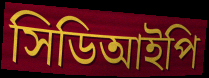
সিডিআইপি